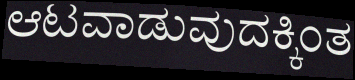
ಆಟವಾಡುವುದಕ್ಕಿಂತ